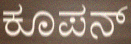
ಕೂಪನ್